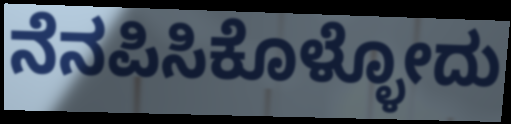
ನೆನಪಿಸಿಕೊಳ್ಳೋದು